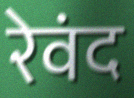
रेवंद